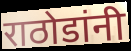
राठोडांनी